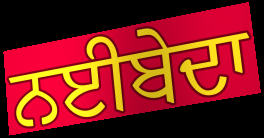
ਨਈਬੇਦਾ